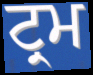
ਟ੍ਰਮ